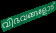
വിഭവങ്ങളോട്